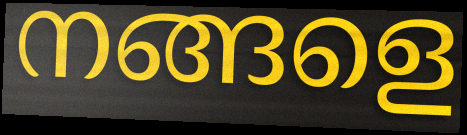
നങ്ങളെ